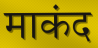
माकंद